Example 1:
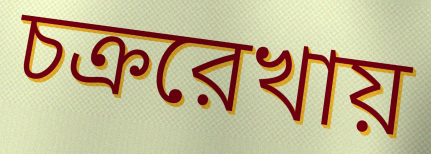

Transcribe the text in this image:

চক্ররেখায়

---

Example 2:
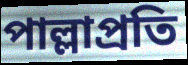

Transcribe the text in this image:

পাল্লাপ্রতি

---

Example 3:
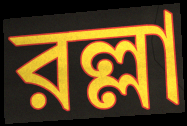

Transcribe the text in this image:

রল্লা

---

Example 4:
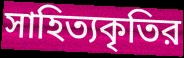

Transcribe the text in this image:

সাহিত্যকৃতির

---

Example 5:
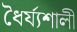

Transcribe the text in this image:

ধৈর্য্যশালী